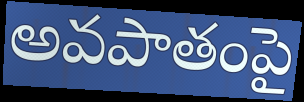
అవపాతంపై